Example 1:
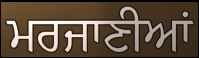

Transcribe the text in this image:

ਮਰਜਾਣੀਆਂ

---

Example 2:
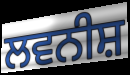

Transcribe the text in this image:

ਲਵਨੀਸ਼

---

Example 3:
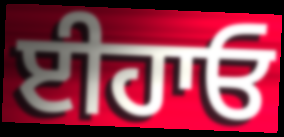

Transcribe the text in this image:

ਈਹਾਓ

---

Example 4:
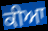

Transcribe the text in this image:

ਕੀਆ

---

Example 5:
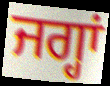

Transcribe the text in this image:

ਜਗ੍ਹਾਂ